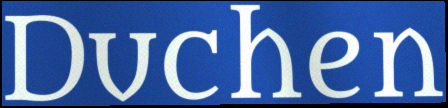
Duchen